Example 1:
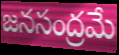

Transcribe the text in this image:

జనసంద్రమే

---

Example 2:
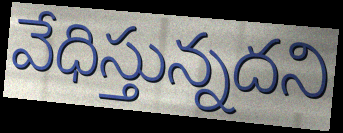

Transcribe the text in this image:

వేధిస్తున్నదని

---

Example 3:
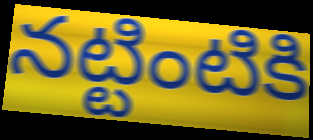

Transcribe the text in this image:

నట్టింటికి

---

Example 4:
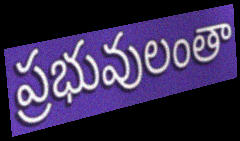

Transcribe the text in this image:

ప్రభువులంతా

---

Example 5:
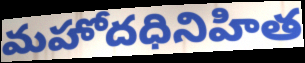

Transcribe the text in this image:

మహోదధినిహిత